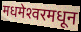
मधमेश्वरमधून